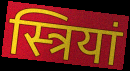
स्त्रियां